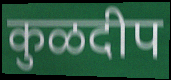
कुळदीप